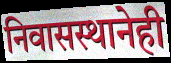
निवासस्थानेही